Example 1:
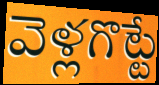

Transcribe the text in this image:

వెళ్లగొట్టే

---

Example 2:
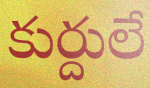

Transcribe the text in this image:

కుర్దులే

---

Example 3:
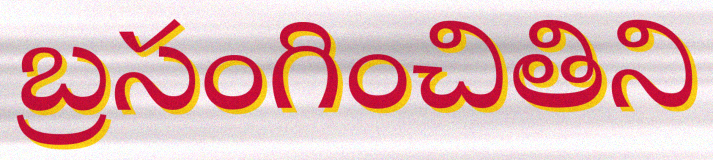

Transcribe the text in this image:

బ్రసంగించితిని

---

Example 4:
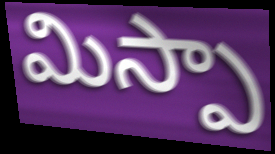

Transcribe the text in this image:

మిస్పా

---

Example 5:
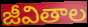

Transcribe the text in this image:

జీవితాల